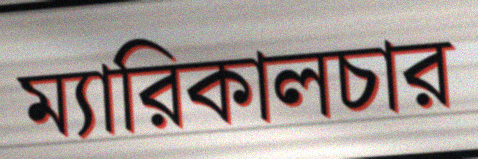
ম্যারিকালচার